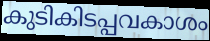
കുടികിടപ്പവകാശം